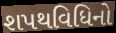
શપથવિધિનો